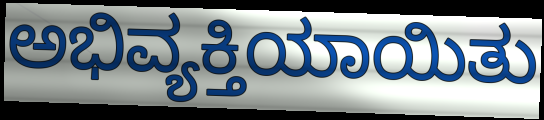
ಅಭಿವ್ಯಕ್ತಿಯಾಯಿತು